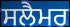
ਸਲੈਮਰ